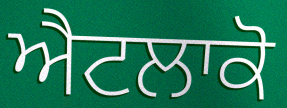
ਐਟਲਾਕੋ